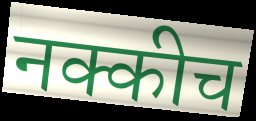
नक्कीच